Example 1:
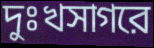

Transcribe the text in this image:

দুঃখসাগরে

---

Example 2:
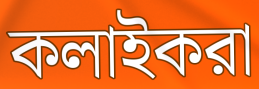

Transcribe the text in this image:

কলাইকরা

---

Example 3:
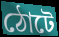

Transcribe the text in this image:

ঠোটে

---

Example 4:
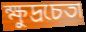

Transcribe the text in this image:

ক্ষুদ্রচেতা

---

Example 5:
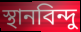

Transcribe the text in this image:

স্থানবিন্দু